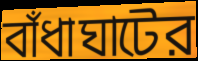
বাঁধাঘাটের